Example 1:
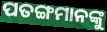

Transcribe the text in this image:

ପତଙ୍ଗମାନଙ୍କୁ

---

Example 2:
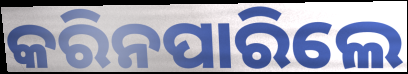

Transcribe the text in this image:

କରିନପାରିଲେ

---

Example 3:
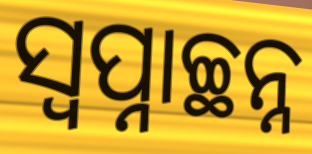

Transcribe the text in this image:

ସ୍ଵପ୍ନାଚ୍ଛନ୍ନ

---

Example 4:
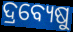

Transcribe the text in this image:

ଦ୍ରବ୍ୟେଷୁ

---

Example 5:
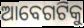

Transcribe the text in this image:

ଆବେଗଟିକୁ